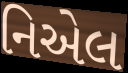
નિએલ